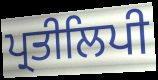
ਪ੍ਰਤੀਲਿਪੀ